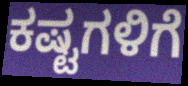
ಕಷ್ಟಗಳಿಗೆ